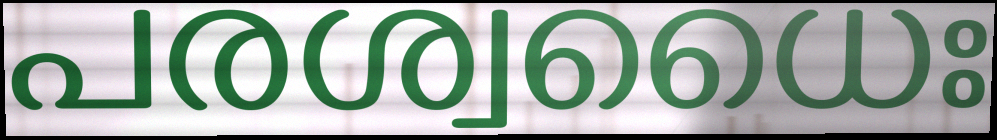
പരശ്വധൈഃ